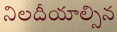
నిలదీయాల్సిన